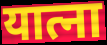
यात्ना